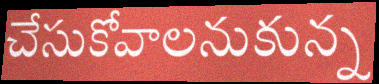
చేసుకోవాలనుకున్న